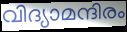
വിദ്യാമന്ദിരം